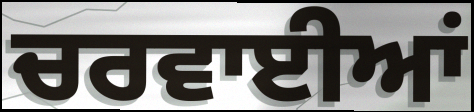
ਚਰਵਾਈਆਂ